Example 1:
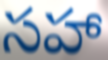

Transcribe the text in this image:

సహా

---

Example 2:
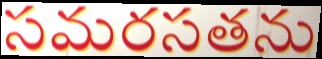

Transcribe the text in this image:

సమరసతను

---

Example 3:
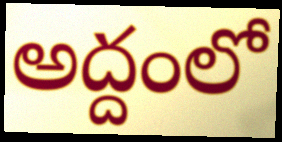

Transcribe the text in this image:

అద్దంలో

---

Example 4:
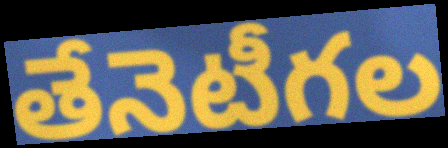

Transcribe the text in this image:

తేనెటీగల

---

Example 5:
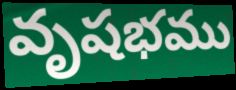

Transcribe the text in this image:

వృషభము